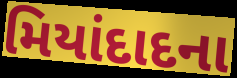
મિયાંદાદના